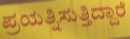
ಪ್ರಯತ್ನಿಸುತ್ತಿದ್ದಾರೆ